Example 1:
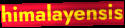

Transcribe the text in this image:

himalayensis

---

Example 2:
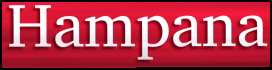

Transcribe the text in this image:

Hampana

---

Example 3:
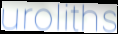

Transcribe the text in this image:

uroliths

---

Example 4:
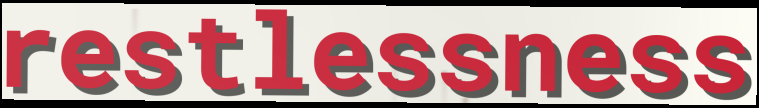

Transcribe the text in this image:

restlessness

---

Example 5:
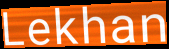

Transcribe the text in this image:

Lekhan